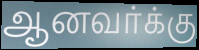
ஆனவர்க்கு